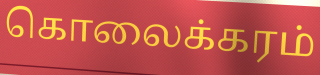
கொலைக்கரம்